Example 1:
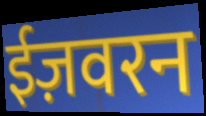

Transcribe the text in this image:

ईज़वरन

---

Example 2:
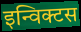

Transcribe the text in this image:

इन्विक्टस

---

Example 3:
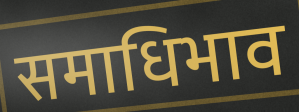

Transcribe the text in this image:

समाधिभाव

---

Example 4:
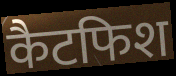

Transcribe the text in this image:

कैटफिश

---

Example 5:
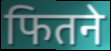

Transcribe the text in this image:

फितने